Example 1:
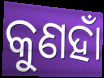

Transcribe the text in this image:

କୁଣହାଁ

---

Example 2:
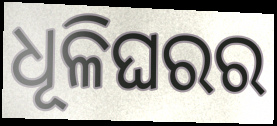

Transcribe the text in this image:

ଧୂଳିଘରର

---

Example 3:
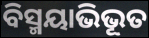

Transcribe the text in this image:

ବିସ୍ମୟାଭିଭୂତ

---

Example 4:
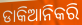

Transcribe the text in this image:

ଡାକିଆନିକରି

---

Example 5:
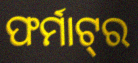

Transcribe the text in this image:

ଫର୍ମାଟ୍‌ର